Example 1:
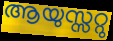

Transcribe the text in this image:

ആയുസ്സറ്റു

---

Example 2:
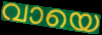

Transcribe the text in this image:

വായെ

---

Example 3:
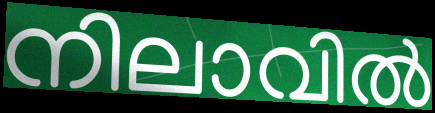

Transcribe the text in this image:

നിലാവിൽ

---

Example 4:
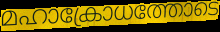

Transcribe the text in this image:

മഹാക്രോധത്തോടെ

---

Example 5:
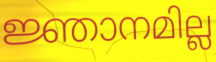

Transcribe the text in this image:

ജ്ഞാനമില്ല